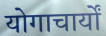
योगाचार्यों